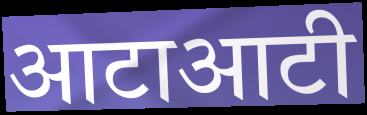
आटाआटी